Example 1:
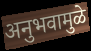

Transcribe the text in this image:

अनुभवामुळे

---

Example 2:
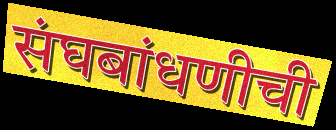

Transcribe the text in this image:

संघबांधणीची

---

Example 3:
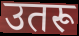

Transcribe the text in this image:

उतरू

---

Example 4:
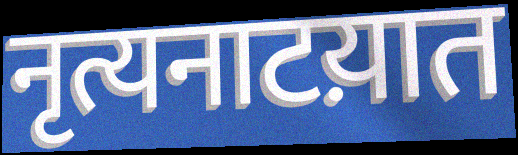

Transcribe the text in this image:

नृत्यनाटय़ात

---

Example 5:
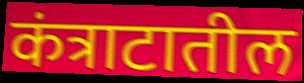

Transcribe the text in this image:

कंत्राटातील